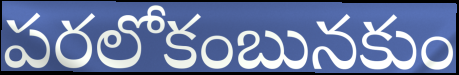
పరలోకంబునకుం